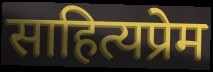
साहित्यप्रेम